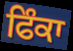
ਫਿੰਕਾ